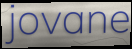
jovane